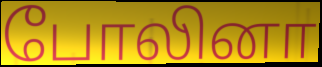
போலினா